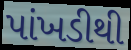
પાંખડીથી